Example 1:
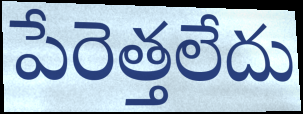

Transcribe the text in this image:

పేరెత్తలేదు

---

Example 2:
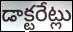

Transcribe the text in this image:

డాక్టరేట్లు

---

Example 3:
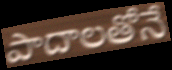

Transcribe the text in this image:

పాదాలతోనే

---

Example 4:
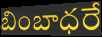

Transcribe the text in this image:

బింబాధరే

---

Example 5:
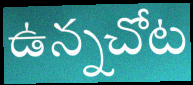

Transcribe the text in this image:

ఉన్నచోట